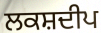
ਲਕਸ਼ਦੀਪ